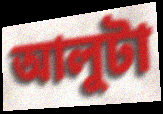
আলুটা